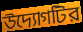
উদ্যোগটির